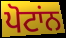
ਪੋਟਾਂਨ